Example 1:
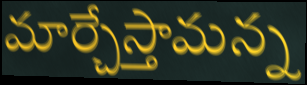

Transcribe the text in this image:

మార్చేస్తామన్న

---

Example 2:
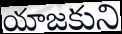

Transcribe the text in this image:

యాజకుని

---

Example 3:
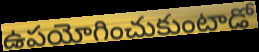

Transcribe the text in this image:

ఉపయోగించుకుంటాడో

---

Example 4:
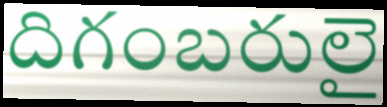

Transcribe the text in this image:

దిగంబరులై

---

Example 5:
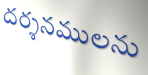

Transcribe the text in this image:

దర్శనములను